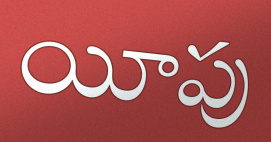
యీపు